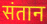
संतान